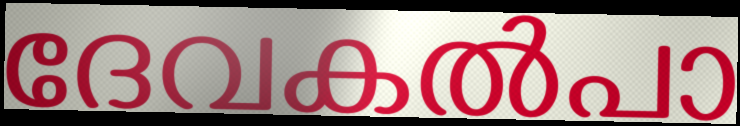
ദേവകൽപാ